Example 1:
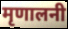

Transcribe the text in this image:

मृणालनी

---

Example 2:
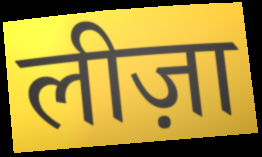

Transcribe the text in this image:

लीज़ा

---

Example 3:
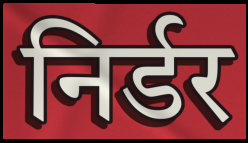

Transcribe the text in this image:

निर्डर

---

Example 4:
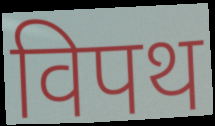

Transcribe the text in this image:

विपथ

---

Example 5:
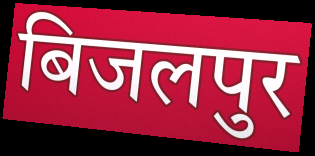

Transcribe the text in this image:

बिजलपुर